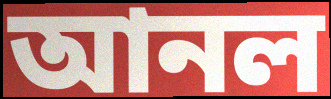
আনল